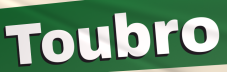
Toubro